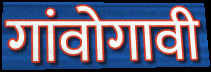
गांवोगावी